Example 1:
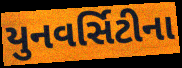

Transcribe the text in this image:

યુનવર્સિટીના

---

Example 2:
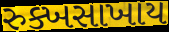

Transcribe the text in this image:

રુક્ખસાખાય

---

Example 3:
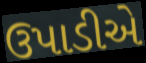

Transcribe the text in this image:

ઉપાડીએ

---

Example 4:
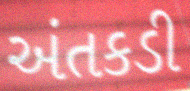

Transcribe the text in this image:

અંતકડી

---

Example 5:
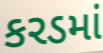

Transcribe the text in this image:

કરડમાં